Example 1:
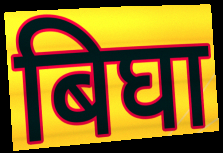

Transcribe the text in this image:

बिघा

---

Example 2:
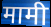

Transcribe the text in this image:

मामी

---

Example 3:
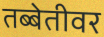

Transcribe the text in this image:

तब्बेतीवर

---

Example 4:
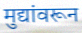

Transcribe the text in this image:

मुद्यांवरून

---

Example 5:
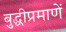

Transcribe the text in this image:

बुद्धीप्रमाणें